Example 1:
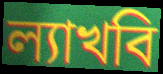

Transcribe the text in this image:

ল্যাখবি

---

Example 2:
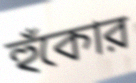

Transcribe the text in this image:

হুঁকোর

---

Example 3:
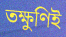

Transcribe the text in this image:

তক্ষুণিই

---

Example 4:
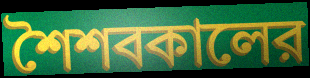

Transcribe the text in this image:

শৈশবকালের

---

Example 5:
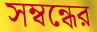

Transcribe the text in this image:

সম্বন্ধের